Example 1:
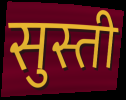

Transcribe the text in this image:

सुस्‍ती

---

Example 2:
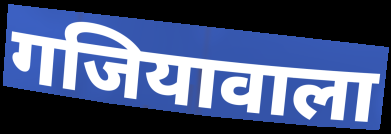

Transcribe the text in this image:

गजियावाला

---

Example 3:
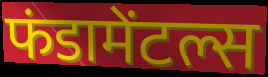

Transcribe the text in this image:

फंडामेंटल्स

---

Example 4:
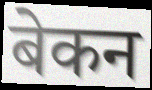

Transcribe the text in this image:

बेकन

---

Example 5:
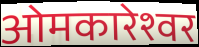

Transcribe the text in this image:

ओमकारेश्वर